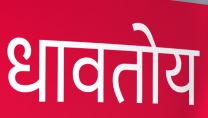
धावतोय